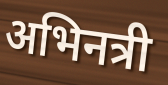
अभिनत्री